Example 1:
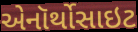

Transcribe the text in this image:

એનૉર્થોસાઇટ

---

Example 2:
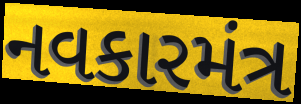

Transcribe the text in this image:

નવકારમંત્ર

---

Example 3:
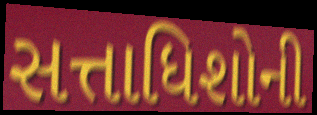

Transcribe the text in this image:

સત્તાધિશોની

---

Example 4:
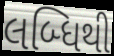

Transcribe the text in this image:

લબ્ધિથી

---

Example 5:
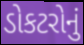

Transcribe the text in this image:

ડોકટરોનું